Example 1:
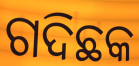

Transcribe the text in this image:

ଗଦିଛକ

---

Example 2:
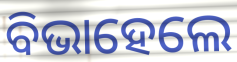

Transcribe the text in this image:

ବିଭାହେଲେ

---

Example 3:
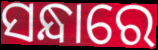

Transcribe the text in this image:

ସନ୍ଧାରେ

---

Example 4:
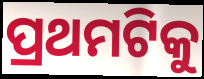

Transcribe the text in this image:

ପ୍ରଥମଟିକୁ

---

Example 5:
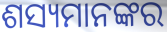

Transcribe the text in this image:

ଶସ୍ୟମାନଙ୍କର